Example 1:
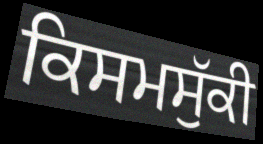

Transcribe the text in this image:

ਕਿਸਮਸੁੱਕੀ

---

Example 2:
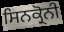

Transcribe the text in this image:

ਸਿਨਕ੍ਰੋਨੀ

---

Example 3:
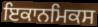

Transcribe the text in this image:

ਇਕਾਨਮਿਕਸ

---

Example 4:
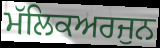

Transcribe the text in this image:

ਮੱਲਿਕਅਰਜੁਨ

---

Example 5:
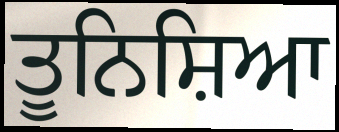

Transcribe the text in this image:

ਤੂਨਿਸ਼ਿਆ